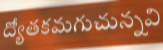
ద్యోతకమగుచున్నవి